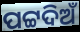
ପଟ୍ଟଦିଅଁ